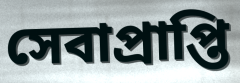
সেবাপ্রাপ্তি